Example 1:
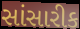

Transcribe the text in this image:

સાંસારીક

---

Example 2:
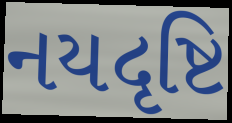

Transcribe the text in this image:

નયદૃષ્ટિ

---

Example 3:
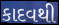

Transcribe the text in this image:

કાદવથી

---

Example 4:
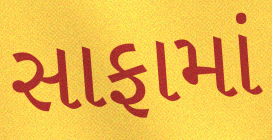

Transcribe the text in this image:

સાફામાં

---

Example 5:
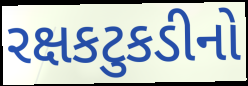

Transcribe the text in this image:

રક્ષકટુકડીનો